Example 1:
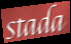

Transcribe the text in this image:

stada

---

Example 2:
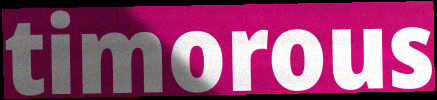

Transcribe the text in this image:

timorous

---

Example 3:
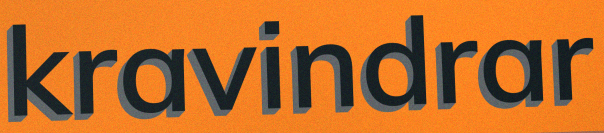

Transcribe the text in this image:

kravindrar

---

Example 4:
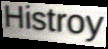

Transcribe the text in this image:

Histroy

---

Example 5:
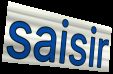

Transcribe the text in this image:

saisir